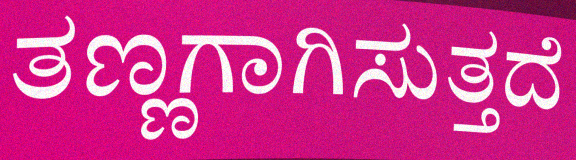
ತಣ್ಣಗಾಗಿಸುತ್ತದೆ